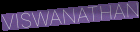
VISWANATHAN